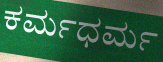
ಕರ್ಮಧರ್ಮ